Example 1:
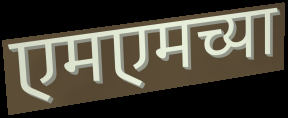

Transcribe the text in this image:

एमएमच्या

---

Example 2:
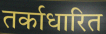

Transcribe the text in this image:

तर्काधारित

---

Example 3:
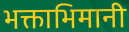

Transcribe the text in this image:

भक्ताभिमानी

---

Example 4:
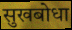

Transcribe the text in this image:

सुखबोधा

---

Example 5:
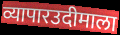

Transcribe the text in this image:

व्यापारउदीमाला